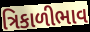
ત્રિકાળીભાવ